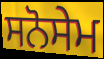
ਸਨੋਸੇਮ